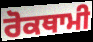
ਰੋਕਥਾਮੀ